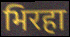
भिरहा